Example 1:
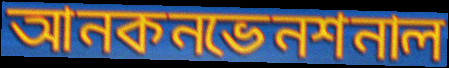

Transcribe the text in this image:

আনকনভেনশনাল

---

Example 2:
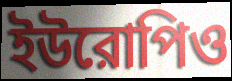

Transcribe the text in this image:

ইউরোপিও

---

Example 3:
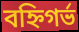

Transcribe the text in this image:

বহ্নিগর্ভ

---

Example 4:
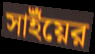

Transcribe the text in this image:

সাইঁয়ের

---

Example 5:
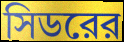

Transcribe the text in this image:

সিডরের